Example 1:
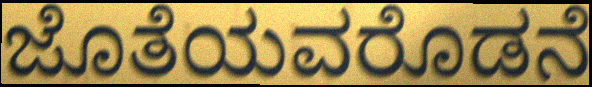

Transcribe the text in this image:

ಜೊತೆಯವರೊಡನೆ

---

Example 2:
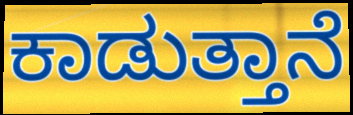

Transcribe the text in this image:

ಕಾಡುತ್ತಾನೆ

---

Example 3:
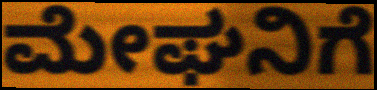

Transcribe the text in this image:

ಮೇಘನಿಗೆ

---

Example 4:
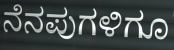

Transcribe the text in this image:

ನೆನಪುಗಳಿಗೂ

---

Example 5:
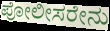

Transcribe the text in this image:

ಪೋಲೀಸರೇನು